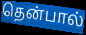
தென்பால்